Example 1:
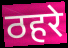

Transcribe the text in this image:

ठहरे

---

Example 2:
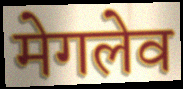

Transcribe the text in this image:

मेगलेव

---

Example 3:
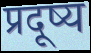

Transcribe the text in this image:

प्रदूष्य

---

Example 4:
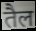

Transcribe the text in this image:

तैल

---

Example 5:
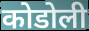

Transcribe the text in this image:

कोडोली